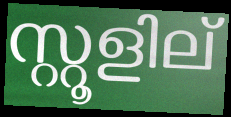
സ്റ്റൂളില്